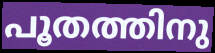
പൂതത്തിനു